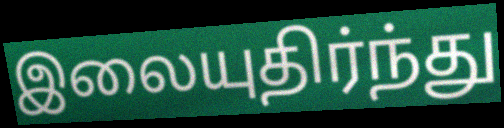
இலையுதிர்ந்து